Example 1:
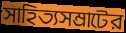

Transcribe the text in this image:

সাহিত্যসম্রাটের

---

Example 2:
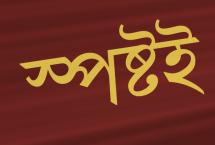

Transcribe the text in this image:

স্পষ্টই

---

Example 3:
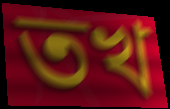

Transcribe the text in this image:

তখ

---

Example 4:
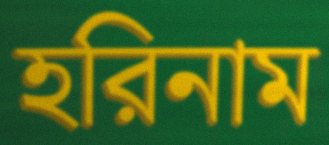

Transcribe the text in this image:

হরিনাম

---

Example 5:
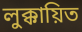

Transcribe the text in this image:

লুক্কায়িত